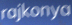
rajkonya